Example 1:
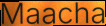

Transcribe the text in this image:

Maacha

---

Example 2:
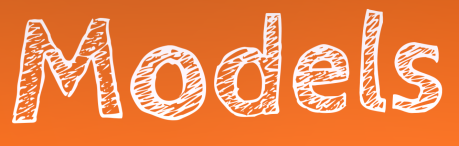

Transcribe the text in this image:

Models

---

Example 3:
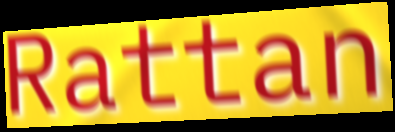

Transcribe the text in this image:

Rattan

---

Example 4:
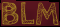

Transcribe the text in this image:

BLM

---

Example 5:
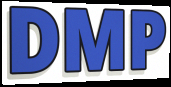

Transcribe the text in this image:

DMP